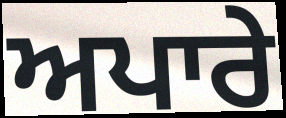
ਅਪਾਰੇ